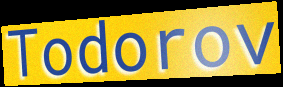
Todorov